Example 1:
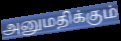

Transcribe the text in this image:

அனுமதிக்கும்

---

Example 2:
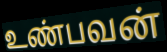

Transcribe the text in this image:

உண்பவன்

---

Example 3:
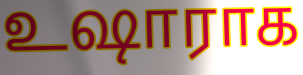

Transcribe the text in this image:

உஷாராக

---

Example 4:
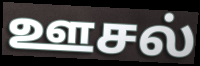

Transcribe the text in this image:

ஊசல்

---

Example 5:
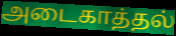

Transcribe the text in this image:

அடைகாத்தல்